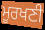
ਮੂਰਖਣੀ